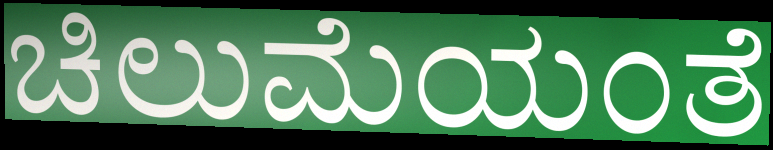
ಚಿಲುಮೆಯಂತೆ